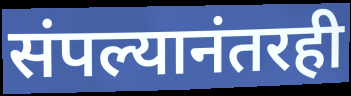
संपल्यानंतरही